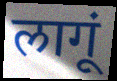
लागूं